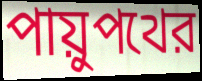
পায়ুপথের